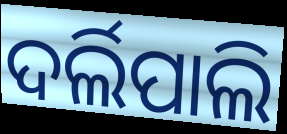
ଦର୍ଲିପାଲି